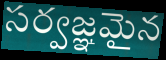
సర్వజ్ఞమైన